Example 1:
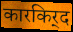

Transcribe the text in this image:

कारकिर्द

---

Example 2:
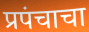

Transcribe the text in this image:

प्रपंचाचा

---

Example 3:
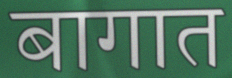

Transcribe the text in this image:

बागात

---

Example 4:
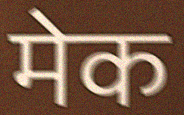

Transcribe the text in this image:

मेक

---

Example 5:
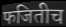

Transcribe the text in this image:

फजितीच